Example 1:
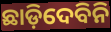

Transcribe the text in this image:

ଛାଡ଼ିଦେବିନି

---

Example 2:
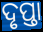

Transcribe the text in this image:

ଦୃପ୍ତା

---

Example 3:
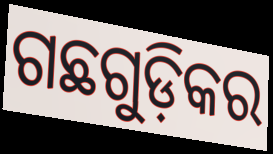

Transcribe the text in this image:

ଗଛଗୁଡ଼ିକର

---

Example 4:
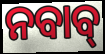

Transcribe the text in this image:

ନବାବ୍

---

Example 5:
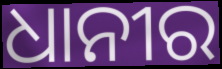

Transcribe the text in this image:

ଧାନୀର